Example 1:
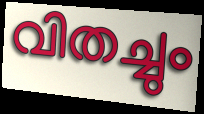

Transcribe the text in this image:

വിതച്ചും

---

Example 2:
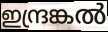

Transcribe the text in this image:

ഇന്ദ്രങ്കൽ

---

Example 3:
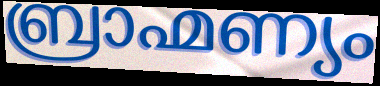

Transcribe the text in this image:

ബ്രാഹ്മണ്യം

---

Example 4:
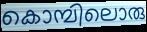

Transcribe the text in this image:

കൊമ്പിലൊരു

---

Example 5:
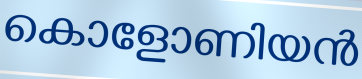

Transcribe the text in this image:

കൊളോണിയൻ